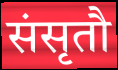
संसृतौ